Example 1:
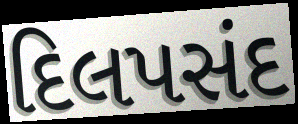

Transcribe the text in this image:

દિલપસંદ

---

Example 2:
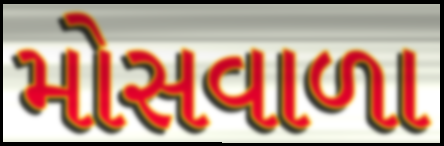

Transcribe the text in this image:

મોસવાળા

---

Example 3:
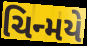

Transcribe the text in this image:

ચિન્મયે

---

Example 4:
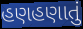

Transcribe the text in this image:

હણહણાતું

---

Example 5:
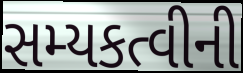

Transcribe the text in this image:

સમ્યકત્વીની